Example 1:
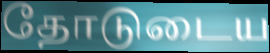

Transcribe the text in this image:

தோடுடைய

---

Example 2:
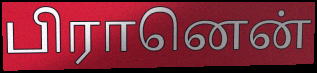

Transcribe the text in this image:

பிரானென்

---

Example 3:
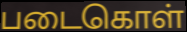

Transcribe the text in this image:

படைகொள்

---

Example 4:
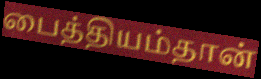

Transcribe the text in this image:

பைத்தியம்தான்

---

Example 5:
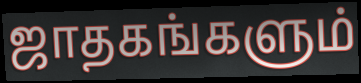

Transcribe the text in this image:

ஜாதகங்களும்